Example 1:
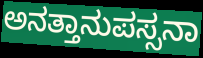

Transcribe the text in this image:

ಅನತ್ತಾನುಪಸ್ಸನಾ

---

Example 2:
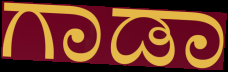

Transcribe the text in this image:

ಗಾಡಾ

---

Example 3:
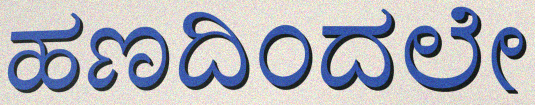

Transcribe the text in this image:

ಹಣದಿಂದಲೇ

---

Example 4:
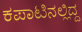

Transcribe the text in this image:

ಕಪಾಟಿನಲ್ಲಿದ್ದ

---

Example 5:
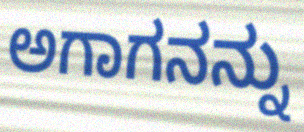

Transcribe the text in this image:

ಅಗಾಗನನ್ನು